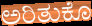
ಅರಿತುಕೊ